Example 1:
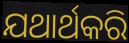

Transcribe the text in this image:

ଯଥାର୍ଥକରି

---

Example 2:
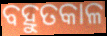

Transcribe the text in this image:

ବହୁତକାଳ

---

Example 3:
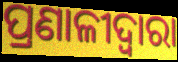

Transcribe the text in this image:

ପ୍ରଣାଳୀଦ୍ୱାରା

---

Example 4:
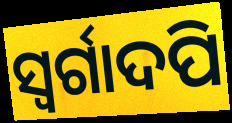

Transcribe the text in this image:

ସ୍ୱର୍ଗାଦପି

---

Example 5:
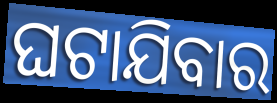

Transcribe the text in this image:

ଘଟାଯିବାର